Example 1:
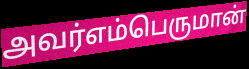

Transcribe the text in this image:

அவர்எம்பெருமான்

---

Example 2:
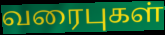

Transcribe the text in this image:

வரைபுகள்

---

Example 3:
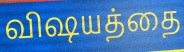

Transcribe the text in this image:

விஷயத்தை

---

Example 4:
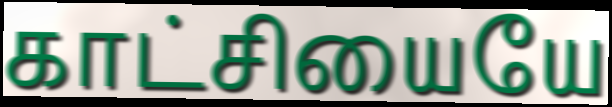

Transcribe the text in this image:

காட்சியையே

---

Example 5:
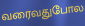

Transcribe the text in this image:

வரைவதுபோல